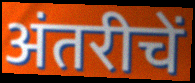
अंतरीचें